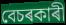
বেচৰকাৰী